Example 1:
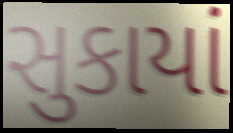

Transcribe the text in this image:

સુકાયાં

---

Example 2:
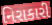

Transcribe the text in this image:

નિરાકારી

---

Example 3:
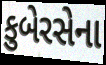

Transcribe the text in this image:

કુબેરસેના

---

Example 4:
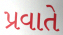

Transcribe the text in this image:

પ્રવાતે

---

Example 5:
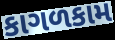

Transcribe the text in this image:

કાગળકામ